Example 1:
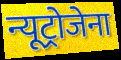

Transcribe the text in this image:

न्यूट्रोजेना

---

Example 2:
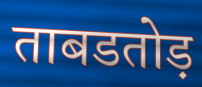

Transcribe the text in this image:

ताबडतोड़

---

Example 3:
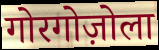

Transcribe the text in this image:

गोरगोज़ोला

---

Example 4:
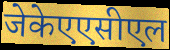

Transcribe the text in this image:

जेकेएएसीएल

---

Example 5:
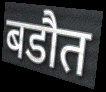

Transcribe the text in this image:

बडौत